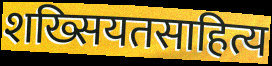
शख्सियतसाहित्य